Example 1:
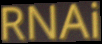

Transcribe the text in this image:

RNAi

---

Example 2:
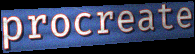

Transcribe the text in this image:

procreate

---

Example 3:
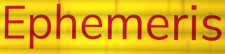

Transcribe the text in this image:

Ephemeris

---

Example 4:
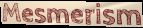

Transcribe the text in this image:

Mesmerism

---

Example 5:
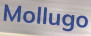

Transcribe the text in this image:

Mollugo